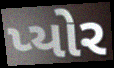
પ્યોર